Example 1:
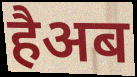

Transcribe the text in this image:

हैअब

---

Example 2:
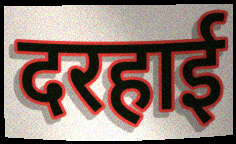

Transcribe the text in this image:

दरहाई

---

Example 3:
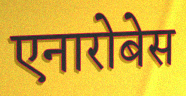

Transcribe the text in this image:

एनारोबेस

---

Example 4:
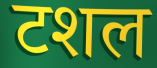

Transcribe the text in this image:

टशल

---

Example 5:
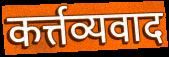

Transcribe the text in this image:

कर्त्तव्यवाद